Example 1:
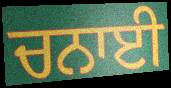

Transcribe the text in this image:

ਚਨਾਈ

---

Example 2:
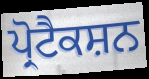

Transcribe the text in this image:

ਪ੍ਰੋਟੈਕਸ਼ਨ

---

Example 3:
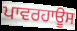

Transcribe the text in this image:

ਪਾਵਰਹਾਊਸ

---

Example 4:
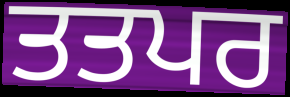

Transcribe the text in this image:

ਤਤਪਰ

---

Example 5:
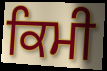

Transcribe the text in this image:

ਕਿਮੀ